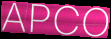
APCO